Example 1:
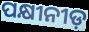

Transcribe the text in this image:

ପକ୍ଷୀନୀଡ଼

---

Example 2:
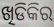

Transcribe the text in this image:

ଖିଡିକିର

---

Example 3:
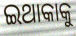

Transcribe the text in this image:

ଇଥାକାକୁ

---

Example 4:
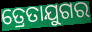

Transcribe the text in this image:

ତ୍ରେତାଯୁଗର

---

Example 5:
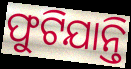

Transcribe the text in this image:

ଫୁଟିଯାନ୍ତି